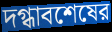
দগ্ধাবশেষের